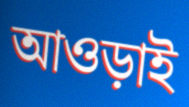
আওড়াই